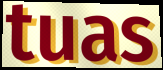
tuas